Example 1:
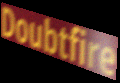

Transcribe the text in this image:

Doubtfire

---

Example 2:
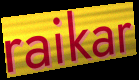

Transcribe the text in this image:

raikar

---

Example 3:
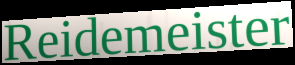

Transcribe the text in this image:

Reidemeister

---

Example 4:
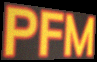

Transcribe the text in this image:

PFM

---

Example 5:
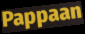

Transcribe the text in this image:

Pappaan